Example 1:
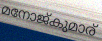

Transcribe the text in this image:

മനോജ്കുമാര്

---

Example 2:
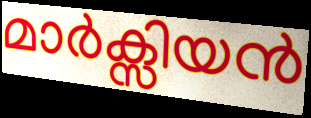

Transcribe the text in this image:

മാർക്സിയൻ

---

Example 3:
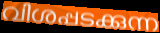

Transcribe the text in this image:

വിശപ്പടക്കുന്ന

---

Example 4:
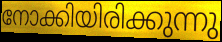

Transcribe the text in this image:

നോക്കിയിരിക്കുന്നു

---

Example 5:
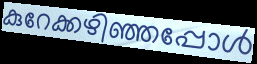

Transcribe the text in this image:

കുറേക്കഴിഞ്ഞപ്പോൾ